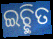
ଇଚ୍ଛିତ